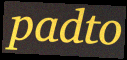
padto